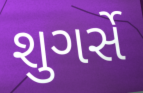
શુગર્સે